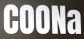
COONa